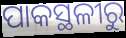
ପାକସ୍ଥଳୀରୁ